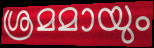
ശ്രമമായും